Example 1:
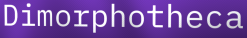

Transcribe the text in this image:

Dimorphotheca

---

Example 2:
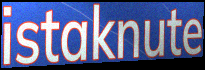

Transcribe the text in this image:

istaknute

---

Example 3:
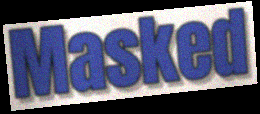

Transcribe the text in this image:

Masked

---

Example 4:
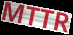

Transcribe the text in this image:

MTTR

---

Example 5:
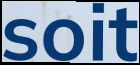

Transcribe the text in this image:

soit